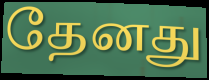
தேனது